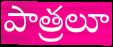
పాత్రలూ